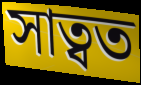
সাত্বত